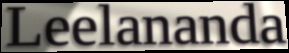
Leelananda